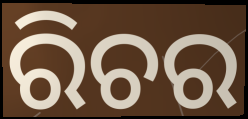
ରିଚର